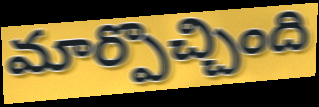
మార్పొచ్చింది